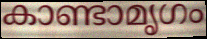
കാണ്ടാമൃഗം